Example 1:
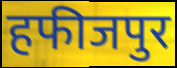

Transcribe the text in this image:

हफीजपुर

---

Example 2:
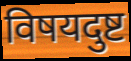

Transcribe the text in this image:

विषयदुष्ट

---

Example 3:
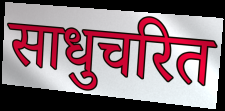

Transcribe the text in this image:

साधुचरित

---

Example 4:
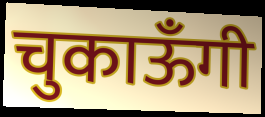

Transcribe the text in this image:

चुकाऊँगी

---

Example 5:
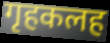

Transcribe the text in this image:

गृहकलह